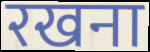
रखना